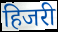
हिजरी